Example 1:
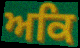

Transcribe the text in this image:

ਅਕਿ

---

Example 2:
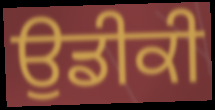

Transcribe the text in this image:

ਉਡੀਕੀ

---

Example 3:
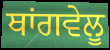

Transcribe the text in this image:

ਥਾਂਗਵੇਲੂ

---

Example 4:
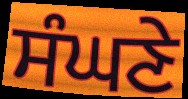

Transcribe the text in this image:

ਸੰਘਣੇ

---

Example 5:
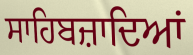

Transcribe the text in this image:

ਸਾਹਿਬਜ਼ਾਦਿਆਂ